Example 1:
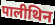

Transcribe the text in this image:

पालीथिन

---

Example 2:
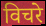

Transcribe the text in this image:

विचरे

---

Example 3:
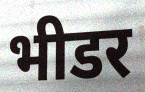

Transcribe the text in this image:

भीडर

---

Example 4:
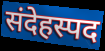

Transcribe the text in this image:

संदेहस्पद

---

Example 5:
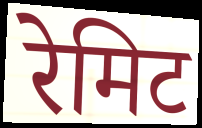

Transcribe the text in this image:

रेमिट